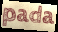
pada